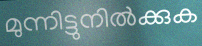
മുന്നിട്ടുനിൽക്കുക